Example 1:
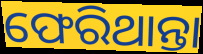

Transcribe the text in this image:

ଫେରିଥାନ୍ତା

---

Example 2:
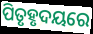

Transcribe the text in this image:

ପିତୃହୃଦୟରେ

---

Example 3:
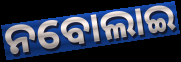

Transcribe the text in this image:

ନବୋଲାଇ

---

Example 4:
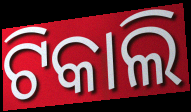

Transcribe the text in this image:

ଟିକାଲି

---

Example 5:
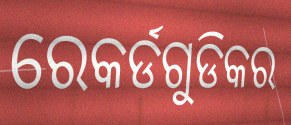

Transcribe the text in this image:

ରେକର୍ଡଗୁଡିକର